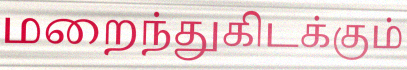
மறைந்துகிடக்கும்